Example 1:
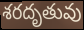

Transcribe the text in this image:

శరదృతువు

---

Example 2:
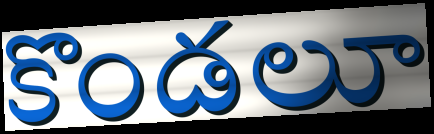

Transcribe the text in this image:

కొండలూ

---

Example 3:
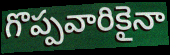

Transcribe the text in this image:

గొప్పవారికైనా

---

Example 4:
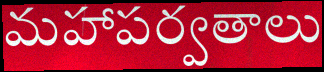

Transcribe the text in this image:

మహాపర్వతాలు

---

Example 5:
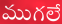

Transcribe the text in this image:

ముగలే